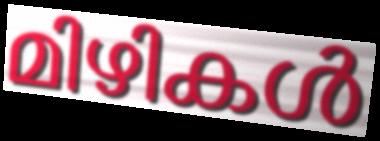
മിഴികൾ